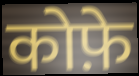
कोफ़े